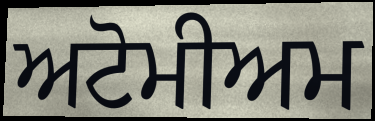
ਅਟੋਮੀਅਮ